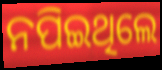
ନପିଇଥିଲେ